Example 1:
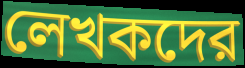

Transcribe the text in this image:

লেখকদের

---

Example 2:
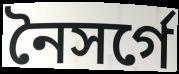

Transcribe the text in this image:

নৈসর্গে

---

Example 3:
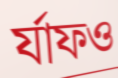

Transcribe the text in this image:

র্যাফও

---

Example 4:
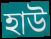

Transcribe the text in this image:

হাউ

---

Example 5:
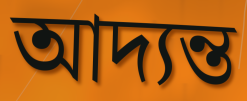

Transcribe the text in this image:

আদ্যন্ত